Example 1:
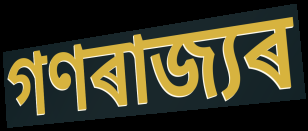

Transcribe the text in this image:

গণৰাজ্যৰ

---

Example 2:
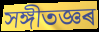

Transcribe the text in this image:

সঙ্গীতজ্ঞৰ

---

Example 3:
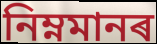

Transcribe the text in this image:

নিম্নমানৰ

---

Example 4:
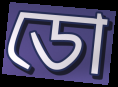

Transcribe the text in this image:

ডো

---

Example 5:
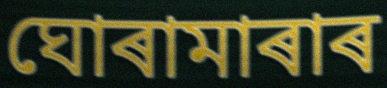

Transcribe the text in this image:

ঘোৰামাৰাৰ